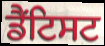
ਡੈਂਟਿਸਟ